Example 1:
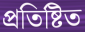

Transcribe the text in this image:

প্রতিষ্টিত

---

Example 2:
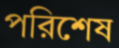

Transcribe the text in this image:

পরিশেষ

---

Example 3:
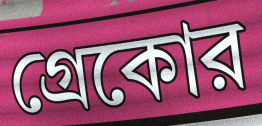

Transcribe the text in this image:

গ্রেকোর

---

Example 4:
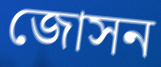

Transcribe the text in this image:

জোসন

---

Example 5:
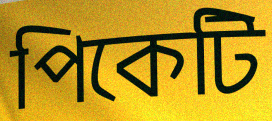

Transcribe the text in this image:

পিকেটি